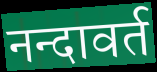
नन्दावर्त